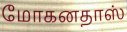
மோகனதாஸ்